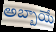
అబ్బాయే